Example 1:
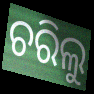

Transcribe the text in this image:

ଚରିଲୁ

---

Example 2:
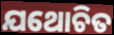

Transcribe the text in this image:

ଯଥୋଚିତ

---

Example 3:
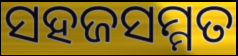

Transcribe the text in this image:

ସହଜସମ୍ମତ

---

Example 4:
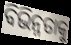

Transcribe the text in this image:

ବିଭିନ୍ନତାକୁ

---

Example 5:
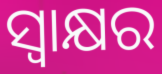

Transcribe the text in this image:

ସ୍ଵାକ୍ଷର